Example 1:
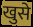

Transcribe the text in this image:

खुसे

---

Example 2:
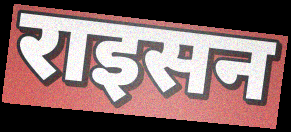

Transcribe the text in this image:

राइसन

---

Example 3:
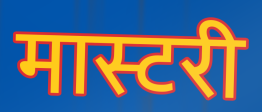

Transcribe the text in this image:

मास्टरी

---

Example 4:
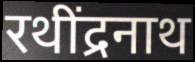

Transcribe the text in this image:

रथींद्रनाथ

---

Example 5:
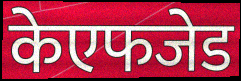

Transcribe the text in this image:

केएफजेड